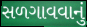
સળગાવવાનું